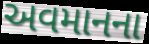
અવમાનના